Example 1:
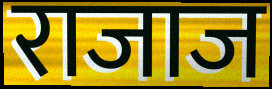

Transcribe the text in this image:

राजाज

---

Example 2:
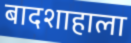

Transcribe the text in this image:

बादशाहाला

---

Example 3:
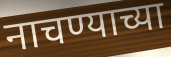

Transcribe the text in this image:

नाचण्याच्या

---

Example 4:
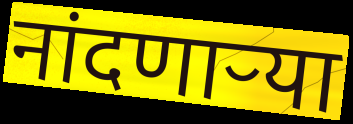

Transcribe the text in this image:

नांदणाऱ्या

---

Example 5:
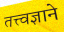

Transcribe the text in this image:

तत्त्वज्ञाने